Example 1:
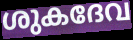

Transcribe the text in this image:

ശുകദേവ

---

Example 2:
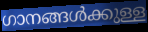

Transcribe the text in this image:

ഗാനങ്ങൾക്കുള്ള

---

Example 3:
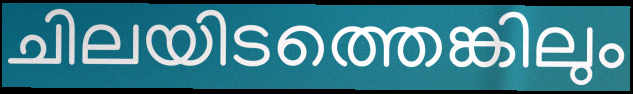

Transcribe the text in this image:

ചിലയിടത്തെങ്കിലും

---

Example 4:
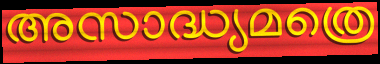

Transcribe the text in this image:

അസാദ്ധ്യമത്രെ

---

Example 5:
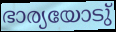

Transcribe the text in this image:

ഭാര്യയോടു്